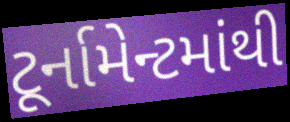
ટૂર્નામેન્ટમાંથી